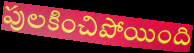
పులకించిపోయింది